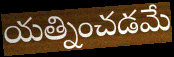
యత్నించడమే